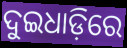
ଦୁଇଧାଡ଼ିରେ